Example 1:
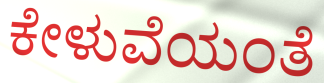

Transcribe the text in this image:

ಕೇಳುವೆಯಂತೆ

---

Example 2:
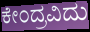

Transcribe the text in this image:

ಕೇಂದ್ರವಿದು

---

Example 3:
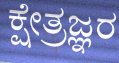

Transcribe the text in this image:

ಕ್ಷೇತ್ರಜ್ಞರ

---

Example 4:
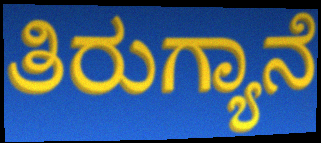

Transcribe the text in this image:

ತಿರುಗ್ಯಾನೆ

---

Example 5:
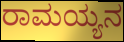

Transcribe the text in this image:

ರಾಮಯ್ಯನ